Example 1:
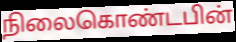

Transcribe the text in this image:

நிலைகொண்டபின்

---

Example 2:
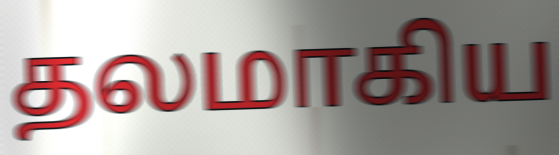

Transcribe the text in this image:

தலமாகிய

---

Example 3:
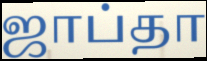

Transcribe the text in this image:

ஜாப்தா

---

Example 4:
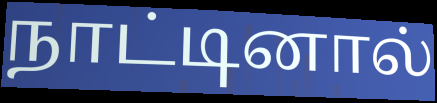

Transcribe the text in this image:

நாட்டினால்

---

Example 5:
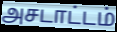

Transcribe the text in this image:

அசடாட்டம்